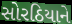
સોરઠિયાને